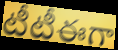
టీటీఈగా